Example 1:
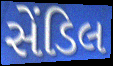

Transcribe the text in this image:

સેંડિલ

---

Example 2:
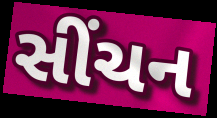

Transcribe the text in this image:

સીંચન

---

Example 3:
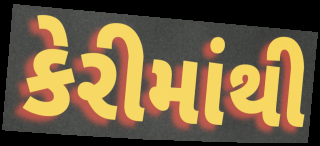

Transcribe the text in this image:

કેરીમાંથી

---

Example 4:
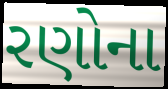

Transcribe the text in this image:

રણોના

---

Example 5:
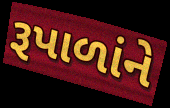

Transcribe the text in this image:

રૂપાળાંને